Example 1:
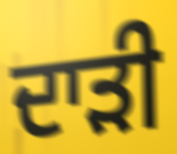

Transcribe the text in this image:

ਦਾੜੀ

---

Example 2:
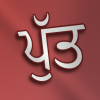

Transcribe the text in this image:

ਪੁੱਤ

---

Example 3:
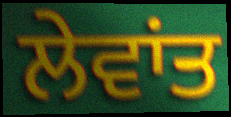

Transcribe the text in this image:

ਲੇਵਾਂਤ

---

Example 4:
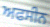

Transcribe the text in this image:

ਅਫਸੀਨ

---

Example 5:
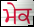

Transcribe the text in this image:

ਮੇਕ